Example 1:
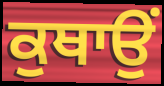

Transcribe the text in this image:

ਕੁਥਾਉਂ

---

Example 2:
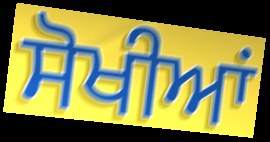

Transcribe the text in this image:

ਸੋਖੀਆਂ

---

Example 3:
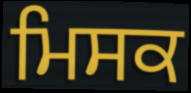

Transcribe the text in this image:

ਮਿਸਕ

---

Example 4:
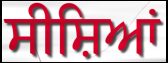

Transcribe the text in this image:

ਸੀਸ਼ਿਆਂ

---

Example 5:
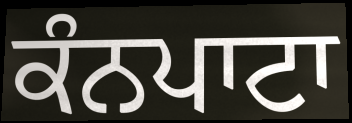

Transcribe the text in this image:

ਕੰਨਪਾਟਾ